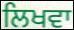
ਲਿਖਵਾ